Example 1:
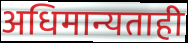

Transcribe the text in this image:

अधिमान्यताही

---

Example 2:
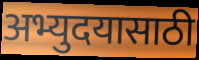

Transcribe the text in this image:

अभ्युदयासाठी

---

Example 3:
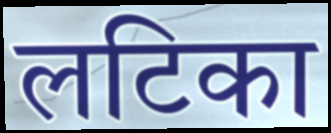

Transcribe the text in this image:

लटिका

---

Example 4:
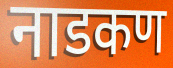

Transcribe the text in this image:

नाडकण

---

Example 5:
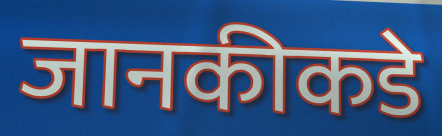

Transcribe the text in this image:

जानकीकडे